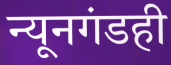
न्यूनगंडही